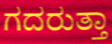
ಗದರುತ್ತಾ